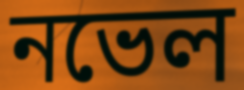
নভেল